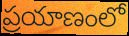
ప్రయాణంలో